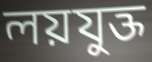
লয়যুক্ত